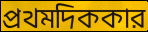
প্রথমদিককার